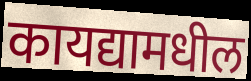
कायद्यामधील